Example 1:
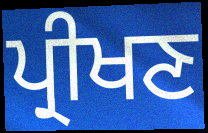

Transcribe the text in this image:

ਪ੍ਰੀਖਣ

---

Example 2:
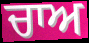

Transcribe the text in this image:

ਚਾਅ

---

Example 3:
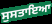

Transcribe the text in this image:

ਸੁਸਤਾਇਆ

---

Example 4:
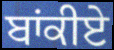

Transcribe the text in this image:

ਬਾਂਕੀਏ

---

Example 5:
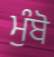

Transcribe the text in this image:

ਮੁੰਬੋ